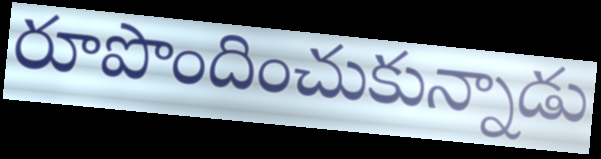
రూపొందించుకున్నాడు